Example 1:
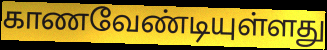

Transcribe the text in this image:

காணவேண்டியுள்ளது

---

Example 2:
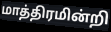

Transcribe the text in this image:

மாத்திரமின்றி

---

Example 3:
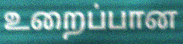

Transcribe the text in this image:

உறைப்பான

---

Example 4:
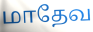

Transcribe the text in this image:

மாதேவ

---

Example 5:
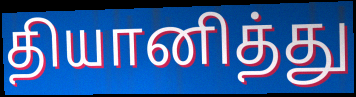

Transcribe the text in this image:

தியானித்து